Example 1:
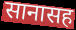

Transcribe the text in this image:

सानासह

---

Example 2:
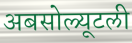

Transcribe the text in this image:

अबसोल्यूटली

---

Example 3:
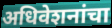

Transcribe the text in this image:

अधिवेशनांचा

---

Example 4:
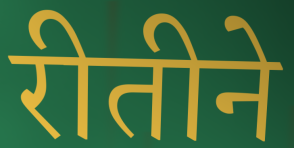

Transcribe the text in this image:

रीतीने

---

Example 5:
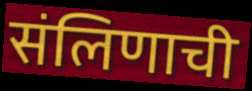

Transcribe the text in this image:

संलिणाची